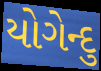
યોગેન્દુ